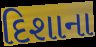
દિશાના